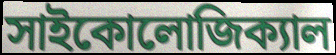
সাইকোলোজিক্যাল